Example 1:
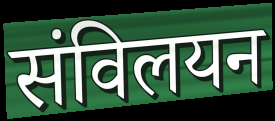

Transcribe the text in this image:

संविलयन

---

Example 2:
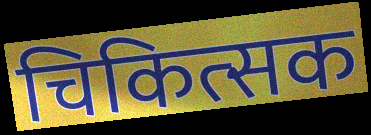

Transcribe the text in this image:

चिकित्‍सक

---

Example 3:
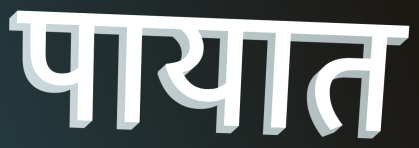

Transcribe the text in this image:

पायात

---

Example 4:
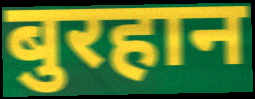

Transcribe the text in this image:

बुरहान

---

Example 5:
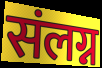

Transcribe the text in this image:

संलग्न